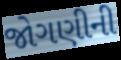
જોગણીની